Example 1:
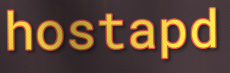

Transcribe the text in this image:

hostapd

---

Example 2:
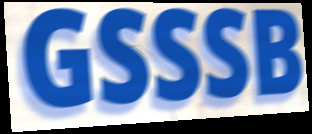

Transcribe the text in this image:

GSSSB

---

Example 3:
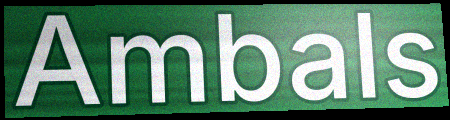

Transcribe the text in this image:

Ambals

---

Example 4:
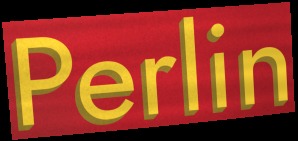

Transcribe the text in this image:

Perlin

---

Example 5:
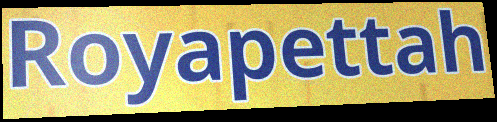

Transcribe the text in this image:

Royapettah